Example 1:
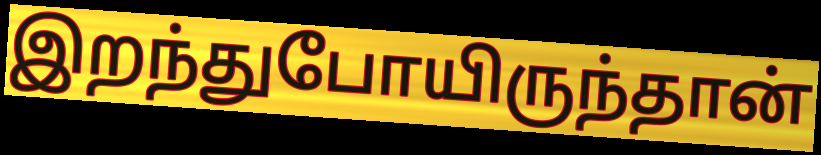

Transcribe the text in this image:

இறந்துபோயிருந்தான்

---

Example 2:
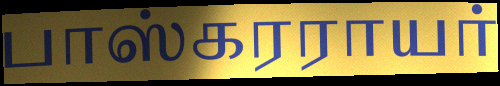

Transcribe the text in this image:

பாஸ்கரராயர்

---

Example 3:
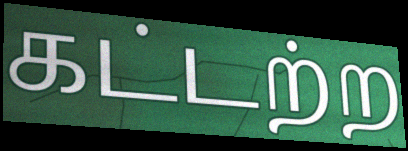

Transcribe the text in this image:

கட்டற்ற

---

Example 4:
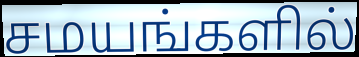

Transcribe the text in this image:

சமயங்களில்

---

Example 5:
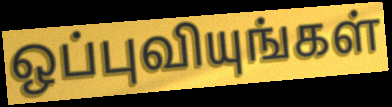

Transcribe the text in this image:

ஒப்புவியுங்கள்